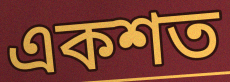
একশত